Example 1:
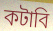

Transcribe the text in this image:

কটাবি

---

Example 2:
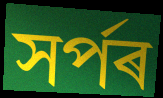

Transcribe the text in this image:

সৰ্পৰ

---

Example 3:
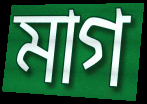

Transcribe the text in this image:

মাগ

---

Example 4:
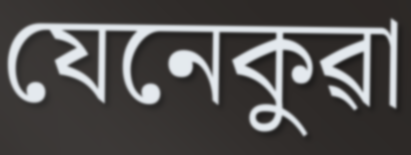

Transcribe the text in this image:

যেনেকুৱা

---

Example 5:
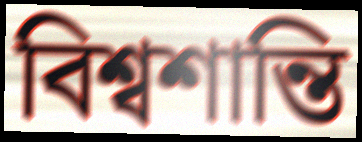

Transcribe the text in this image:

বিশ্বশান্তি